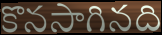
కొనసాగినది